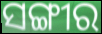
ସଙ୍ଗୀର